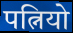
पत्नियो